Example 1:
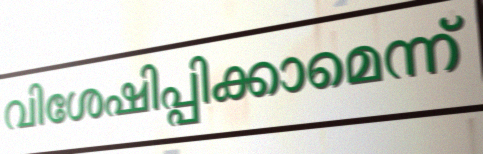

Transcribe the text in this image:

വിശേഷിപ്പിക്കാമെന്ന്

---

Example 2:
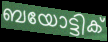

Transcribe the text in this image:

ബയോട്ടിക്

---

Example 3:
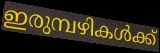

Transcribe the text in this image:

ഇരുമ്പഴികൾക്ക്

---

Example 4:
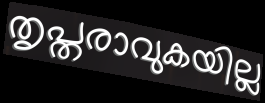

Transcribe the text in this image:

തൃപ്തരാവുകയില്ല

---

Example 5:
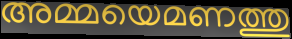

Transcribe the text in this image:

അമ്മയെമണത്തു